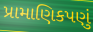
પ્રામાણિકપણું